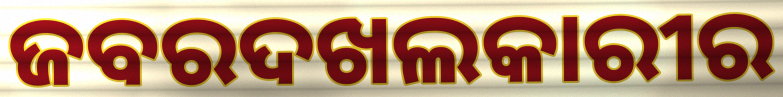
ଜବରଦଖଲକାରୀର